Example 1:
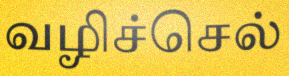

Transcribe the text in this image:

வழிச்செல்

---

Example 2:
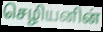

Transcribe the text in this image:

செழியனின்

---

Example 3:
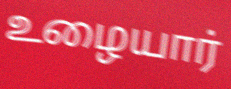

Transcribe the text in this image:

உழையார்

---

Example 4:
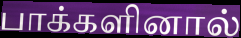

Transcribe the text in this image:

பாக்களினால்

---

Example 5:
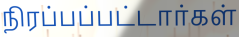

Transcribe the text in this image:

நிரப்பப்பட்டார்கள்